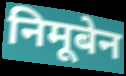
निमूबेन